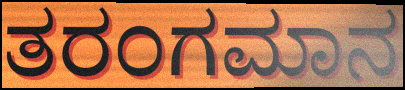
ತರಂಗಮಾನ